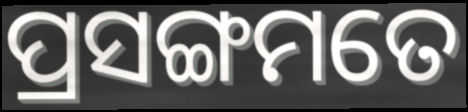
ପ୍ରସଙ୍ଗମତେ